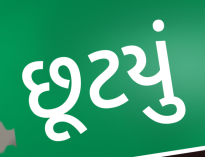
છૂટયું